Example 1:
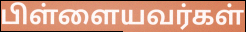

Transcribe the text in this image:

பிள்ளையவர்கள்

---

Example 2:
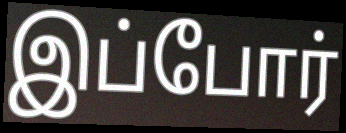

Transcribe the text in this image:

இப்போர்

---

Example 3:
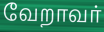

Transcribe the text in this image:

வேறாவர்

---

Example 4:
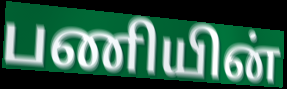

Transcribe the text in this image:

பணியின்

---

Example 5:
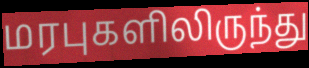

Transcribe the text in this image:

மரபுகளிலிருந்து